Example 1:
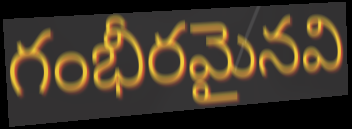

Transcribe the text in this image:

గంభీరమైనవి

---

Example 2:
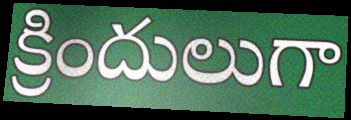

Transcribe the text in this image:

క్రిందులుగా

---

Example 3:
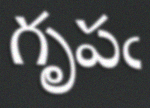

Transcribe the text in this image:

గృపఁ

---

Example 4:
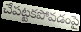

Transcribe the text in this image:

చేపట్టకపోవడంపై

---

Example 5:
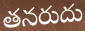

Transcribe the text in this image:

తనరుదు